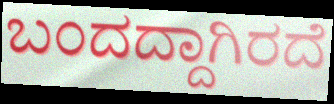
ಬಂದದ್ದಾಗಿರದೆ